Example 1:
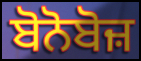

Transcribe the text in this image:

ਬੋਨੋਬੋਜ਼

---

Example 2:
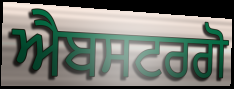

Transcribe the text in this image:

ਐਬਸਟਰਗੋ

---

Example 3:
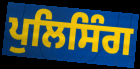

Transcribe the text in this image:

ਪੁਲਿਸਿੰਗ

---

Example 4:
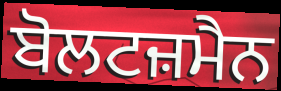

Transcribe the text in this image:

ਬੋਲਟਜ਼ਮੈਨ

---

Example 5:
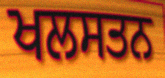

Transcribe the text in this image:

ਖਲਸਤਨ